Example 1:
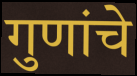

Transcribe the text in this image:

गुणांचे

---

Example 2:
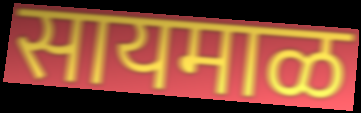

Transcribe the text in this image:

सायमाळ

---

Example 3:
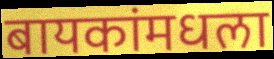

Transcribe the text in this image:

बायकांमधला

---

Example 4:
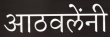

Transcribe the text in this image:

आठवलेंनी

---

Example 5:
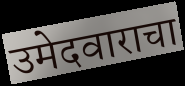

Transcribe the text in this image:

उमेदवाराचा